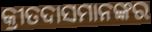
କ୍ରୀତଦାସମାନଙ୍କର